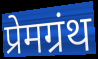
प्रेमग्रंथ